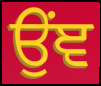
ਉਂਞ